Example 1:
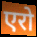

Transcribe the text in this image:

एरो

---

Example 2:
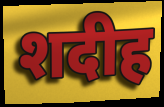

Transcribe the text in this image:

शदीह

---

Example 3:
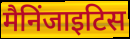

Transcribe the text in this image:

मैनिंजाइटिस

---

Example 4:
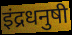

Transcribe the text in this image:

इंद्रधनुषी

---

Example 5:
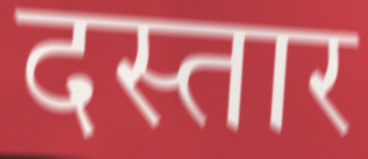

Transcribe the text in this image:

दस्तार